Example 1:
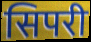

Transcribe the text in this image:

सिपरी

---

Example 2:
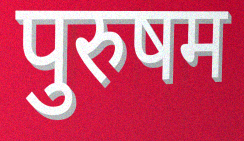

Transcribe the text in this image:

पुरुषम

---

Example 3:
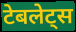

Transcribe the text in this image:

टेबलेट्स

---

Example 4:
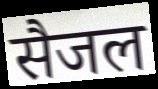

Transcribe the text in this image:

सैजल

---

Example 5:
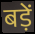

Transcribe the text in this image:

बड़ें